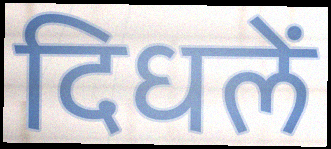
दिधलें